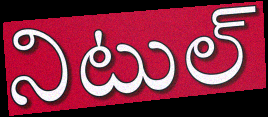
నిటుల్